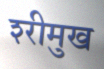
श्रीमुख